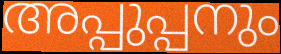
അപ്പുപ്പനും